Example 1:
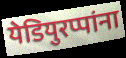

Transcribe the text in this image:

येडियुरप्पांना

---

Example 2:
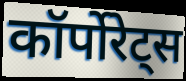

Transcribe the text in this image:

कॉर्पोरेट्स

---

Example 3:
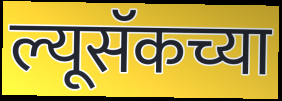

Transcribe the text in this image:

ल्यूसॅकच्या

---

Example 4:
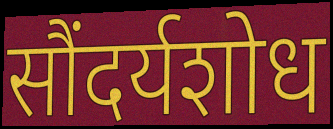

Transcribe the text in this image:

सौंदर्यशोध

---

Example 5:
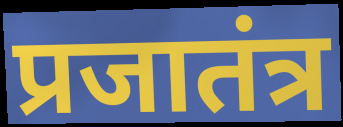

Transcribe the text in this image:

प्रजातंत्र